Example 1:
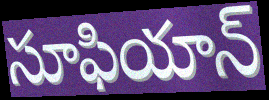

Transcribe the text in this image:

సూఫియాన్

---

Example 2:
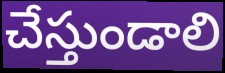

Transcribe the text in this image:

చేస్తుండాలి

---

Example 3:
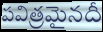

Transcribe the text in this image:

పవిత్రమైనదీ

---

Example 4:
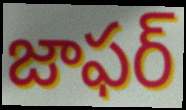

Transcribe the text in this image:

జాఫర్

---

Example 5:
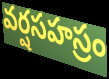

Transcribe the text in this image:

వర్షసహస్రం